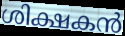
ശിക്ഷകൻ